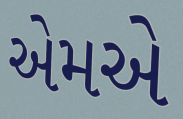
એમએ